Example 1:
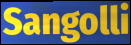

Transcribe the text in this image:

Sangolli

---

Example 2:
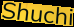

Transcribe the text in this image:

Shuchi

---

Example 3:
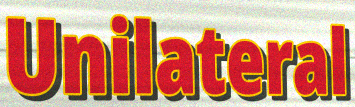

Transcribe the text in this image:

Unilateral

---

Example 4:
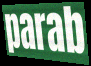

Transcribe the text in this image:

parab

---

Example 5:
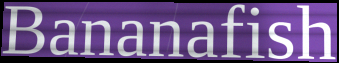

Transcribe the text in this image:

Bananafish